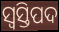
ସ୍ବସ୍ତିପଦ